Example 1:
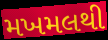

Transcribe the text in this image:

મખમલથી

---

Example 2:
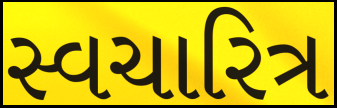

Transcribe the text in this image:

સ્વચારિત્ર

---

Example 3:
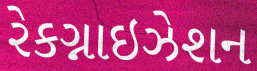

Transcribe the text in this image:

રેકગ્નાઇઝેશન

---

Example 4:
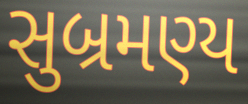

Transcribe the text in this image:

સુબ્રમણ્ય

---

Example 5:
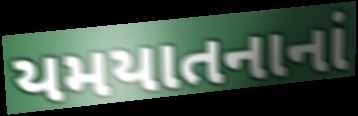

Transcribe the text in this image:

યમયાતનાનાં